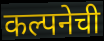
कल्पनेची